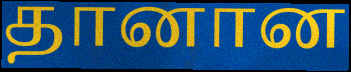
தானான